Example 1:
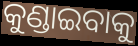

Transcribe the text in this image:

କୁଣ୍ଡାଇବାକୁ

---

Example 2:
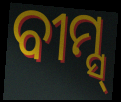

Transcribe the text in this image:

ବୀମ୍ସ୍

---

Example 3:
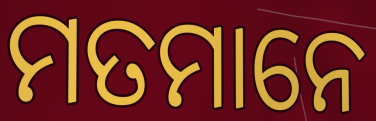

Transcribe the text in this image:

ମତମାନେ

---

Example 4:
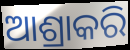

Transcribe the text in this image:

ଆଶ୍ରାକରି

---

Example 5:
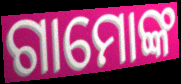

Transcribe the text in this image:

ଗାମୋଙ୍କ